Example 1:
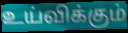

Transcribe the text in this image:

உய்விக்கும்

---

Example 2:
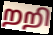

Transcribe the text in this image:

றறி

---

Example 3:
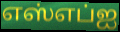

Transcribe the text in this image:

எஸ்எப்ஐ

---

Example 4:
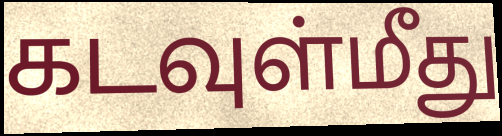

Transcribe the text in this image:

கடவுள்மீது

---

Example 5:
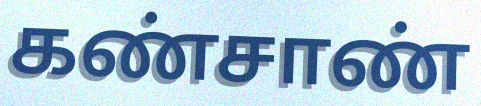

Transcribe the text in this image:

கண்சாண்